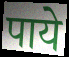
पाये